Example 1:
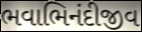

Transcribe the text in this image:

ભવાભિનંદીજીવ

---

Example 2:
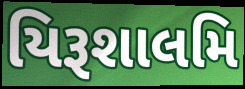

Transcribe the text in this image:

યિરૂશાલમિ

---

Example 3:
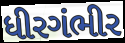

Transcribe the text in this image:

ધીરગંભીર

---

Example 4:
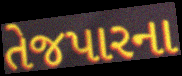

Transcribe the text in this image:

તેજપારના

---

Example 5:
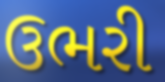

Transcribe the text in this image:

ઉભરી